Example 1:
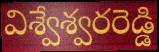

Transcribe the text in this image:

విశ్వేశ్వరరెడ్డి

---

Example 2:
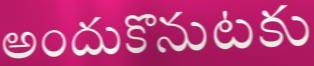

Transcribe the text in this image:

అందుకొనుటకు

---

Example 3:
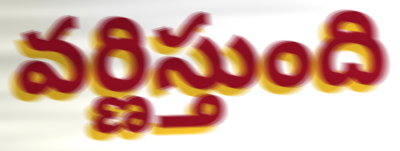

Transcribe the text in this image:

వర్ణిస్తుంది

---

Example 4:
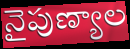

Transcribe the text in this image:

నైపుణ్యాల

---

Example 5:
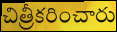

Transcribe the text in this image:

చిత్రీకరించారు